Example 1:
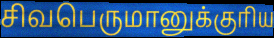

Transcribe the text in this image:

சிவபெருமானுக்குரிய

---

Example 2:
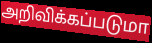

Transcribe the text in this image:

அறிவிக்கப்படுமா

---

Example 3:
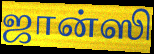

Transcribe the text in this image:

ஜான்ஸி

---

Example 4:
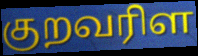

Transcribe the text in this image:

குறவரிள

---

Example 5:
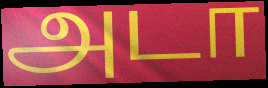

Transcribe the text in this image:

அடா